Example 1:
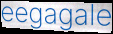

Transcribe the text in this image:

eegagale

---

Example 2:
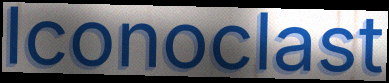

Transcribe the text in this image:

Iconoclast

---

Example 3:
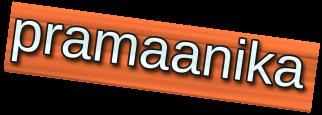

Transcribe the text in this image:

pramaanika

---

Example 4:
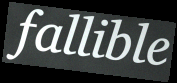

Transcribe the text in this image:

fallible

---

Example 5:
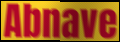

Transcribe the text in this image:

Abnave